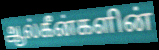
ஆல்கீன்களின்